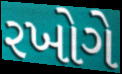
રખોગે